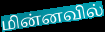
மின்னவில்